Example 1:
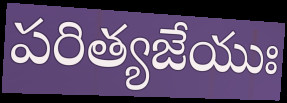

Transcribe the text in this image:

పరిత్యజేయుః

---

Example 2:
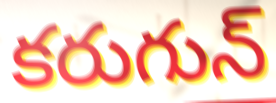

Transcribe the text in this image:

కరుగున్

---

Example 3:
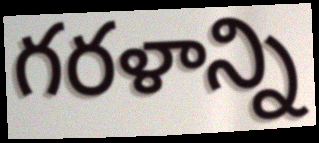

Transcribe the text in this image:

గరళాన్ని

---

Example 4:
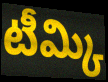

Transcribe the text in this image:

టీమ్కి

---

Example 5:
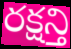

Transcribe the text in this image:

రక్షన్తి